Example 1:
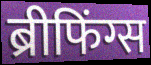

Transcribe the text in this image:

ब्रीफिंग्स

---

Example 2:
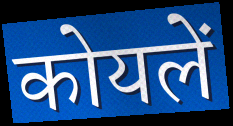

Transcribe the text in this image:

कोयलें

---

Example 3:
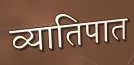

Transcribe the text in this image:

व्यातिपात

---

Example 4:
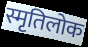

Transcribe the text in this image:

स्मृतिलोक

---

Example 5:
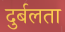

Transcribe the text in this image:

दुर्बलता